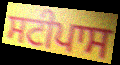
ਸਟੀਪਾਸ